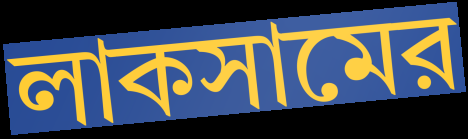
লাকসামের